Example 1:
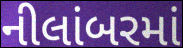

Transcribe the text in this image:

નીલાંબરમાં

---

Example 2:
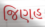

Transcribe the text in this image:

જિણહ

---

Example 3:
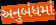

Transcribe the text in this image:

અનુબંધમાં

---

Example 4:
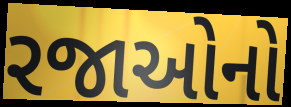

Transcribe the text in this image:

રજાઓનો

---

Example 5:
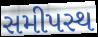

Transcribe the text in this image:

સમીપસ્થ